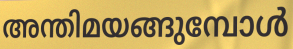
അന്തിമയങ്ങുമ്പോൾ